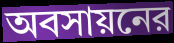
অবসায়নের